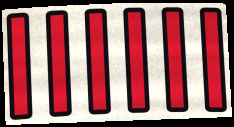
IIIIII